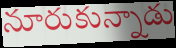
నూరుకున్నాడు